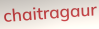
chaitragaur